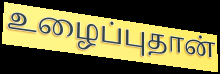
உழைப்புதான்